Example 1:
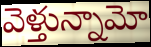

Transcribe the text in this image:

వెళ్తున్నామో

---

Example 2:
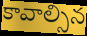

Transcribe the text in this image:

కావాల్సిన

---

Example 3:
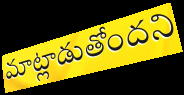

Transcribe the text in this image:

మాట్లాడుతోందని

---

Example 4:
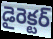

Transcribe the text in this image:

డైరెక్టర్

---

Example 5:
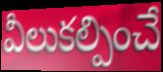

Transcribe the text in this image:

వీలుకల్పించే